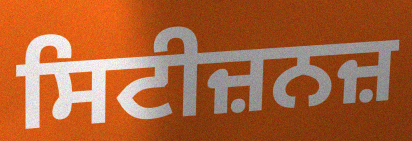
ਸਿਟੀਜ਼ਨਜ਼